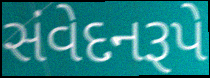
સંવેદનરૂપે